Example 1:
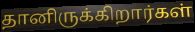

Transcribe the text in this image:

தானிருக்கிறார்கள்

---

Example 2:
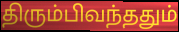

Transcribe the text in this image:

திரும்பிவந்ததும்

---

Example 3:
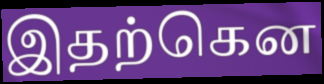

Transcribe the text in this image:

இதற்கென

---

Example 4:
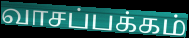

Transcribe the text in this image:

வாசப்பக்கம்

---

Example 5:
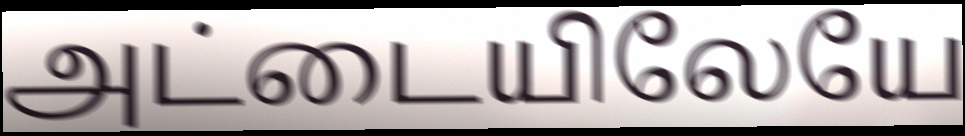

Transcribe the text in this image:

அட்டையிலேயே